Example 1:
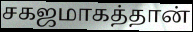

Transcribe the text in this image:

சகஜமாகத்தான்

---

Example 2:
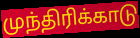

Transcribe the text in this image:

முந்திரிக்காடு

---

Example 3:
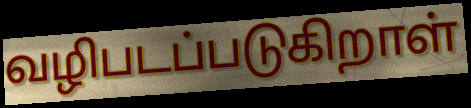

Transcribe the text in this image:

வழிபடப்படுகிறாள்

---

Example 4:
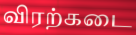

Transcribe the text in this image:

விரற்கடை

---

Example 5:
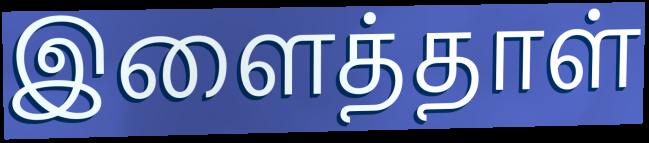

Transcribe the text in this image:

இளைத்தாள்